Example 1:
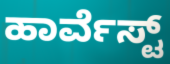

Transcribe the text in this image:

ಹಾರ್ವೆಸ್ಟ್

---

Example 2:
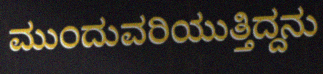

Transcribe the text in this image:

ಮುಂದುವರಿಯುತ್ತಿದ್ದನು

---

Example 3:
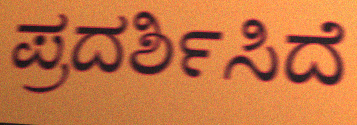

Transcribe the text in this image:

ಪ್ರದರ್ಶಿಸಿದೆ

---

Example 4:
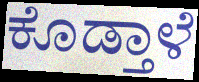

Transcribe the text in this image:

ಕೊಡ್ತಾಳೆ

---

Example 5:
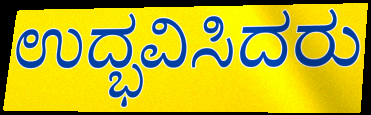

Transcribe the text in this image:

ಉದ್ಭವಿಸಿದರು